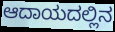
ಆದಾಯದಲ್ಲಿನ